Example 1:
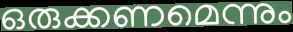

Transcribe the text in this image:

ഒരുക്കണമെന്നും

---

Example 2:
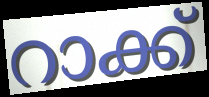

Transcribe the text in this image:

റാക്ക്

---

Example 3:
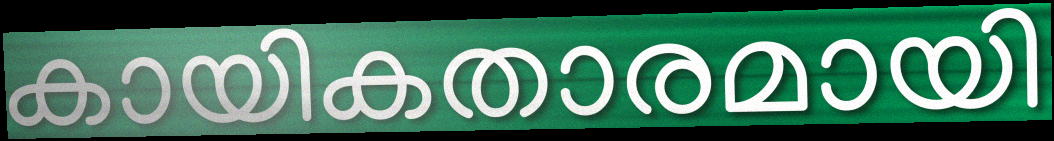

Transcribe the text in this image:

കായികതാരമായി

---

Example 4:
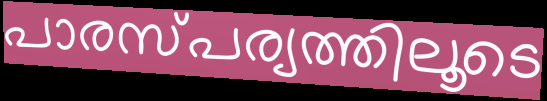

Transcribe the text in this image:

പാരസ്പര്യത്തിലൂടെ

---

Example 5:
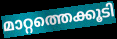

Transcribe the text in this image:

മാറ്റത്തെക്കൂടി